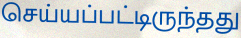
செய்யப்பட்டிருந்தது